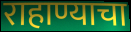
राहाण्याचा